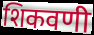
शिकवणी